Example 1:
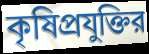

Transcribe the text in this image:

কৃষিপ্রযুক্তির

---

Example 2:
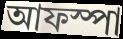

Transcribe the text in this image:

আফস্পা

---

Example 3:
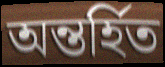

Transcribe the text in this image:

অন্তর্হিত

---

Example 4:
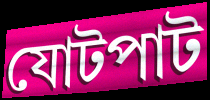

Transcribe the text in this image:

যোটপাট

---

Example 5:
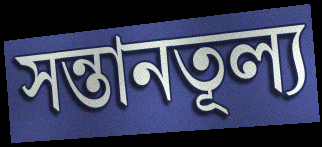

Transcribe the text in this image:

সন্তানতূল্য